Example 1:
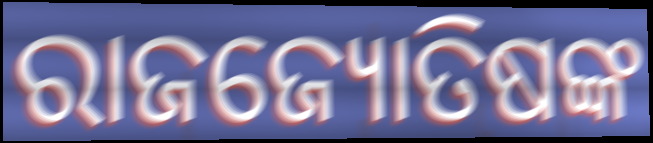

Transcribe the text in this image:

ରାଜଜ୍ୟୋତିଷଙ୍କ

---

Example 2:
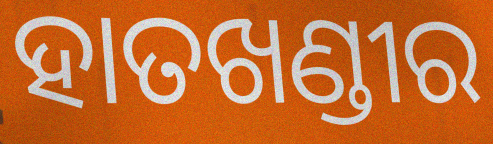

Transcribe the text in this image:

ହାତଖଣ୍ଡୀର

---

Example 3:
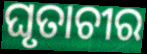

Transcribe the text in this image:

ଘୃତାଚୀର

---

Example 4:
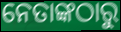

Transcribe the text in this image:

ନେତାଙ୍କଠାରୁ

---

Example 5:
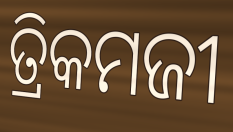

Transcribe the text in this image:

ତ୍ରିକମଜୀ